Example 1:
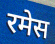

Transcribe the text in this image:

रमेस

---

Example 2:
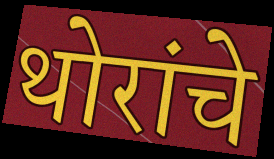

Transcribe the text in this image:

थोरांचे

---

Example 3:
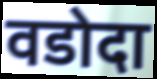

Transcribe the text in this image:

वडोदा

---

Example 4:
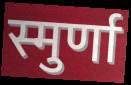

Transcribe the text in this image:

स्मुर्णा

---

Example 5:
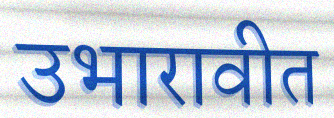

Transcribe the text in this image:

उभारावीत